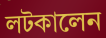
লটকালেন